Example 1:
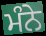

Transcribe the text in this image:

ਮੰਨੇ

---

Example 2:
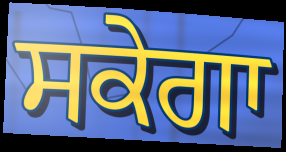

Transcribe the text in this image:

ਸਕੇਗਾ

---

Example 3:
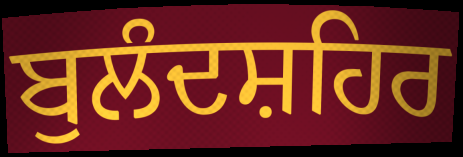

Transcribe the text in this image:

ਬੁਲੰਦਸ਼ਹਿਰ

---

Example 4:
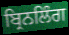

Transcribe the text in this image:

ਬ੍ਰਿਨਲਿੰਗ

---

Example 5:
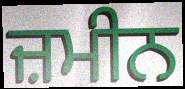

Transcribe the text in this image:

ਜ਼ਮੀਨ